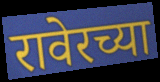
रावेरच्या